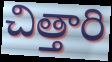
చిత్తారి